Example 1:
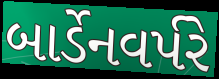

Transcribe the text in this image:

બાર્ડેનવર્પરે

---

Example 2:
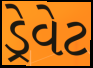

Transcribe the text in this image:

ડ્રેવેટ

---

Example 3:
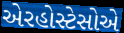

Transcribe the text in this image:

એરહોસ્ટેસોએ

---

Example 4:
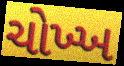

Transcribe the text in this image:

ચોખ્ખ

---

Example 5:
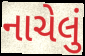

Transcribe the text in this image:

નાચેલું